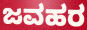
ಜವಹರ